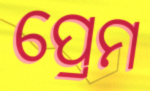
ପ୍ରେମ